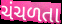
ચંચળતા